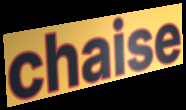
chaise